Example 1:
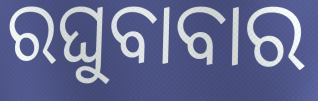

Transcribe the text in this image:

ରଘୁବାବାର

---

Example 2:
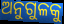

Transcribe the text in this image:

ଅନୁଗୁଳକୁ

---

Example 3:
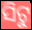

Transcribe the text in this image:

ସିଟୁ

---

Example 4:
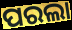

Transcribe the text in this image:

ପରଲା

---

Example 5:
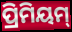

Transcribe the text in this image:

ପ୍ରିମିୟମ୍